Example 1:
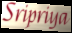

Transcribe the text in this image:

Sripriya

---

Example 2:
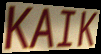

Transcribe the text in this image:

KAIK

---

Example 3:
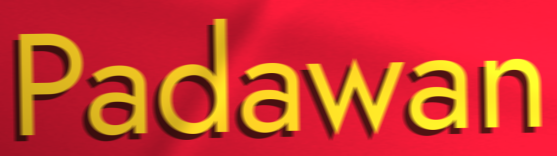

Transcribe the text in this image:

Padawan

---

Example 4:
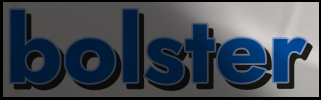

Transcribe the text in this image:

bolster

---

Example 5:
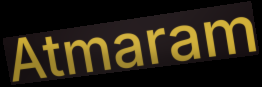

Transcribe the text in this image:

Atmaram